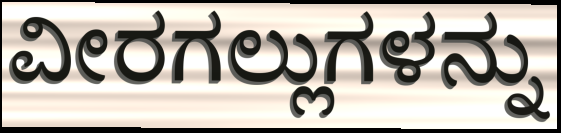
ವೀರಗಲ್ಲುಗಳನ್ನು